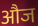
औज